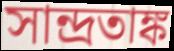
সান্দ্রতাঙ্ক